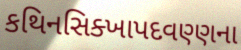
કથિનસિક્ખાપદવણ્ણના